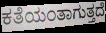
ಕತೆಯಂತಾಗುತ್ತದೆ